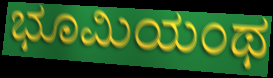
ಭೂಮಿಯಂಥ